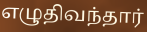
எழுதிவந்தார்